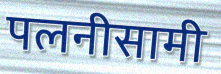
पलनीसामी